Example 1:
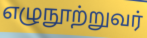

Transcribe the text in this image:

எழுநூற்றுவர்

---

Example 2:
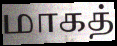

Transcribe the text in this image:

மாகத்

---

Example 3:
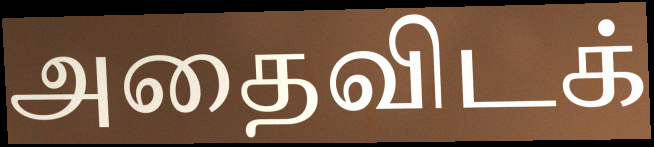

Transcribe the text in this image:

அதைவிடக்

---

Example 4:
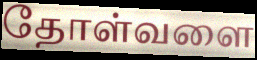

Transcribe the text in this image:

தோள்வளை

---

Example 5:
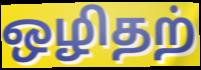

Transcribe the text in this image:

ஒழிதற்